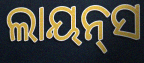
ଲାୟନ୍‌ସ